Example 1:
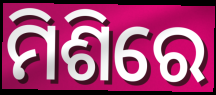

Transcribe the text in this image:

ମିଶିରେ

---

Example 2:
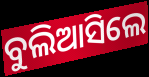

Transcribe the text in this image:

ବୁଲିଆସିଲେ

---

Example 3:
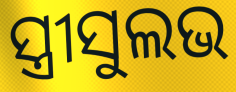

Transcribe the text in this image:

ସ୍ତ୍ରୀସୁଲଭ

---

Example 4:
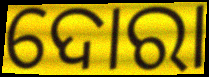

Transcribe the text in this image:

ଦୋରା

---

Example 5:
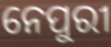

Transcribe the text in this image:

ନେପୁରୀ